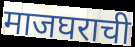
माजघराची